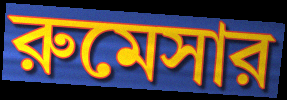
রুমেসার